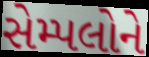
સેમ્પલોને